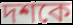
দশকে